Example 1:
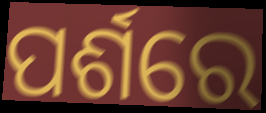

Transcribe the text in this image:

ପର୍ଶରେ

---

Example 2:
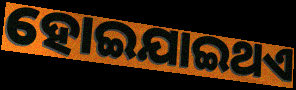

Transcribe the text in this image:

ହୋଇଯାଇଥଏ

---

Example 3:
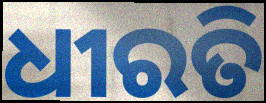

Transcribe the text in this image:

ଧୀରତି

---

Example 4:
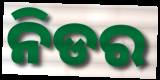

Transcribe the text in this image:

ନିଡର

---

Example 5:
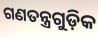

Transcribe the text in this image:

ଗଣତନ୍ତ୍ରଗୁଡ଼ିକ